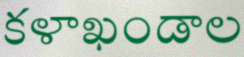
కళాఖండాల